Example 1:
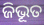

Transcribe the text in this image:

ଜିଭୂତ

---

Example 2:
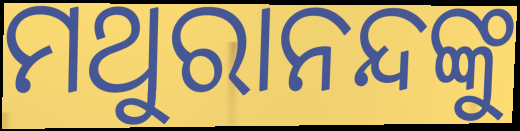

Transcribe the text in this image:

ମଥୁରାନନ୍ଦଙ୍କୁ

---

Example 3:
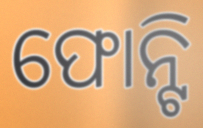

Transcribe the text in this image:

ଫୋନ୍ଟି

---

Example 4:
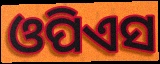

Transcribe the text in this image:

ଓପିଏସ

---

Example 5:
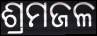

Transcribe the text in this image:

ଶ୍ରମଜଳ